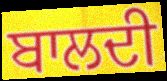
ਬਾਲਦੀ